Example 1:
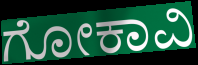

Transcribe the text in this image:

ಗೋಕಾವಿ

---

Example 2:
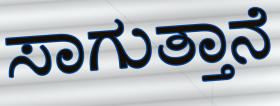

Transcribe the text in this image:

ಸಾಗುತ್ತಾನೆ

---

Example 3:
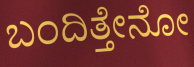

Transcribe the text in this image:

ಬಂದಿತ್ತೇನೋ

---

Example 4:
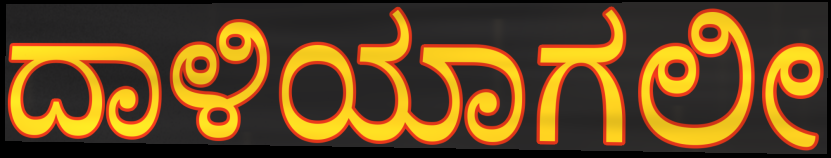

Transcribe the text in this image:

ದಾಳಿಯಾಗಲೀ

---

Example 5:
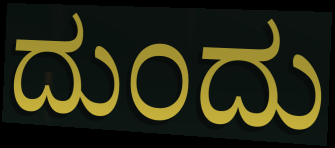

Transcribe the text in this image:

ದುಂದು